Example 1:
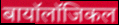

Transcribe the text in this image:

बायॉलॉजिकल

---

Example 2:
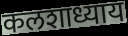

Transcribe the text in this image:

कलशाध्याय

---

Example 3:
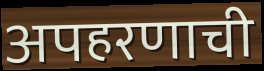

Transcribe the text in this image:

अपहरणाची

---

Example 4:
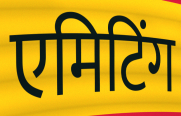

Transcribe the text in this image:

एमिटिंग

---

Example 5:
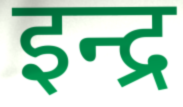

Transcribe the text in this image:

इन्द्र